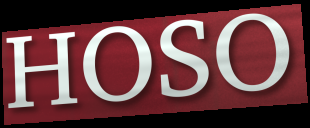
HOSO